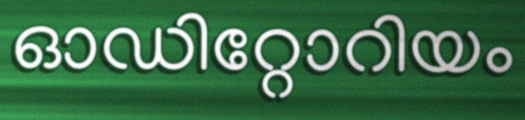
ഓഡിറ്റോറിയം